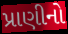
પ્રાણીનો